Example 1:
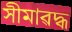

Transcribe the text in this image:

সীমাৱদ্ধ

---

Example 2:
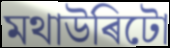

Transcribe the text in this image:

মথাউৰিটো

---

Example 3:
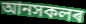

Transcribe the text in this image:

আনসকলৰ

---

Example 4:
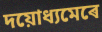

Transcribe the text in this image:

দয়োধ্যমেৰে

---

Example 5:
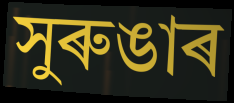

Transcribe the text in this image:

সুৰুঙাৰ